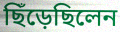
ছিঁড়েছিলেন